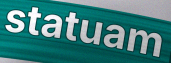
statuam